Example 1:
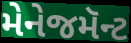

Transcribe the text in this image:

મેનેજમૅન્ટ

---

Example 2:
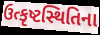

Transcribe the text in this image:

ઉત્કૃષ્ટસ્થિતિના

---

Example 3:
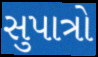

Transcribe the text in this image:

સુપાત્રો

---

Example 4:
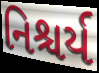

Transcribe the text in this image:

નિશ્ચર્ય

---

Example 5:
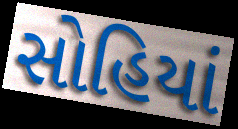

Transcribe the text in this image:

સોહિયાં